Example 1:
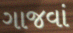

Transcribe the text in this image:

ગાજવાં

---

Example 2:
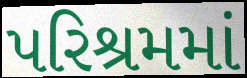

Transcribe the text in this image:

પરિશ્રમમાં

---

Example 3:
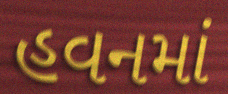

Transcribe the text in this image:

હવનમાં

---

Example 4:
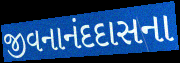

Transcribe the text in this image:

જીવનાનંદદાસના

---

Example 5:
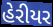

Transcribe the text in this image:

હેરીયર